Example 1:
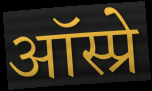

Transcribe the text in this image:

ऑस्प्रे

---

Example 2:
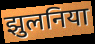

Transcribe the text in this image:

झुलनिया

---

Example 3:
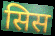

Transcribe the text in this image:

सिस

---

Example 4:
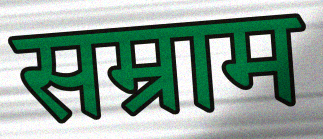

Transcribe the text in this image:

सम्राम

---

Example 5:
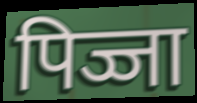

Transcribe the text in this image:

पिज्जा